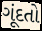
ગૂંદતો